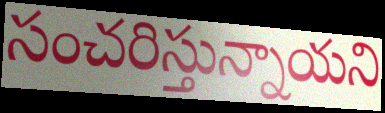
సంచరిస్తున్నాయని